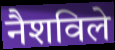
नैशविले